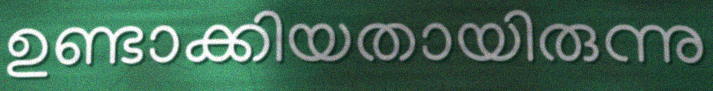
ഉണ്ടാക്കിയതായിരുന്നു